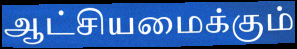
ஆட்சியமைக்கும்